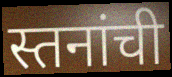
स्तनांची